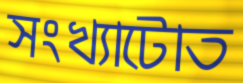
সংখ্যাটোত